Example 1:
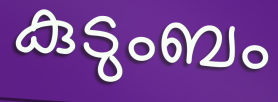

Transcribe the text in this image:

കുടുംബം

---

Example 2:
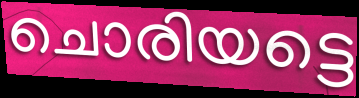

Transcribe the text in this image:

ചൊരിയട്ടെ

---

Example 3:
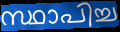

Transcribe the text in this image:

സ്ഥാപിച്ച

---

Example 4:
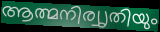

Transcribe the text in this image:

ആത്മനിര്വൃതിയും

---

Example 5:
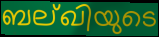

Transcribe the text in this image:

ബല്ഖിയുടെ